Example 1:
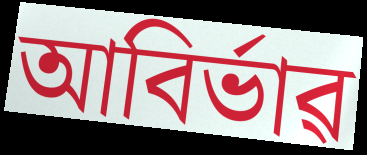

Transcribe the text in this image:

আবিৰ্ভাৱ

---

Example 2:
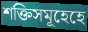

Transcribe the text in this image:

শক্তিসমূহেহে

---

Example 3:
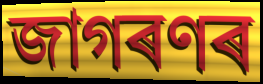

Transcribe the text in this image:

জাগৰণৰ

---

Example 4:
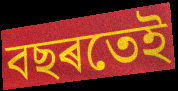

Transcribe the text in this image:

বছৰতেই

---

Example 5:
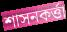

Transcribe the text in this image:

শাসনকৰ্ত্তা